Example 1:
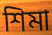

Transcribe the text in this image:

শিমা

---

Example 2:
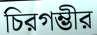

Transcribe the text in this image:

চিরগম্ভীর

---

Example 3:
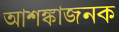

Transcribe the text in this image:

আশঙ্কাজনক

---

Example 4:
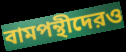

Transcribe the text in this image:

বামপন্থীদেরও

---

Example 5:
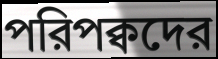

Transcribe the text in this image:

পরিপক্বদের